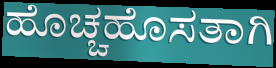
ಹೊಚ್ಚಹೊಸತಾಗಿ